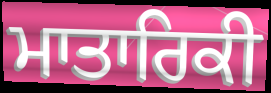
ਮਾਤਾਰਿਕੀ